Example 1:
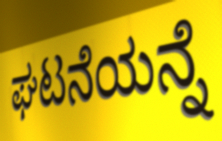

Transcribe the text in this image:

ಘಟನೆಯನ್ನೆ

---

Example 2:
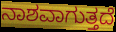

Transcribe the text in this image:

ನಾಶವಾಗುತ್ತದೆ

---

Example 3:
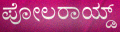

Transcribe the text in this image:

ಪೋಲರಾಯ್ಡ್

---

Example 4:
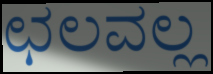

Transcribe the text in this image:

ಛಲವಲ್ಲ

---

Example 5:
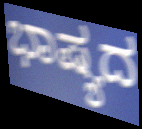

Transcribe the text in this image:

ಭಾಷ್ಯದ